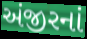
અંજીરનાં